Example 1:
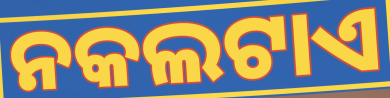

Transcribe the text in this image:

ନକଲଟାଏ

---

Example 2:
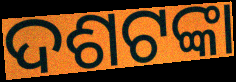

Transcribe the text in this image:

ଦଶଟଙ୍କା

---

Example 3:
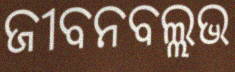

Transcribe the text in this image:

ଜୀବନବଲ୍ଲଭ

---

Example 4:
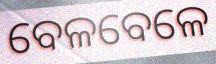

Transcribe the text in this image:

ବେଳବେଳେ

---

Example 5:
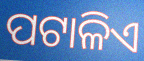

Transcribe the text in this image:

ପଟାଳିଏ